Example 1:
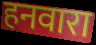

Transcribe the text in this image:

हनवारा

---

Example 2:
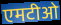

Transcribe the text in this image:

एमटीओ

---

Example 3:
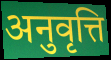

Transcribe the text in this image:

अनुवृत्ति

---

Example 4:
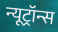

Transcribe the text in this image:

न्यूट्रॉन्स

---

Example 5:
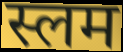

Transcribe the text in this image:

स्लम